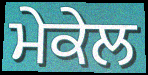
ਮੇਕੇਲ